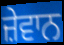
ਜ਼ੇਵਾਨ